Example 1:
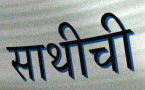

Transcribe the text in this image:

साथीची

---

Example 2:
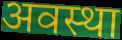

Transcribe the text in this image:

अवस्था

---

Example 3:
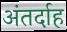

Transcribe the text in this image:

अंतर्दाह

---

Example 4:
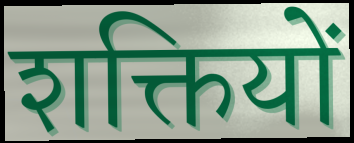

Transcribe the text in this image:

शक्तियों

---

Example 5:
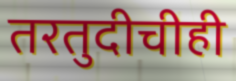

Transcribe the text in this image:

तरतुदीचीही